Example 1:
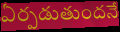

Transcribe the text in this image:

ఏర్పడుతుందనే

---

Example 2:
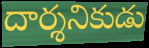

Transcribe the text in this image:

దార్శనికుడు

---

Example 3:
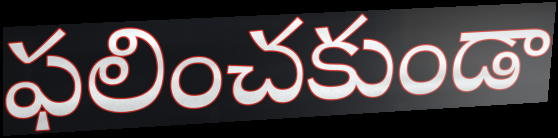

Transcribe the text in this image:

ఫలించకుండా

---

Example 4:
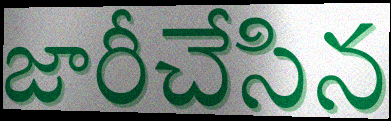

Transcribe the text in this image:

జారీచేసిన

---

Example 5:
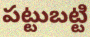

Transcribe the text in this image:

పట్టుబట్టి